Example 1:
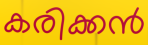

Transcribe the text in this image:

കരിക്കൻ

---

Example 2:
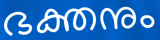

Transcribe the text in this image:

ഭക്തനും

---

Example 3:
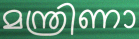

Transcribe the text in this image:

മന്ത്രിണാ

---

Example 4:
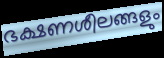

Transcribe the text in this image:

ഭക്ഷണശീലങ്ങളും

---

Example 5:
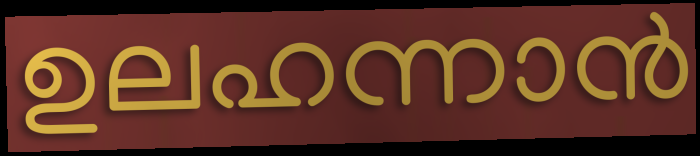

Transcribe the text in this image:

ഉലഹന്നാൻ